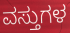
ವಸ್ತುಗಳ